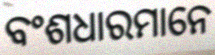
ବଂଶଧାରମାନେ